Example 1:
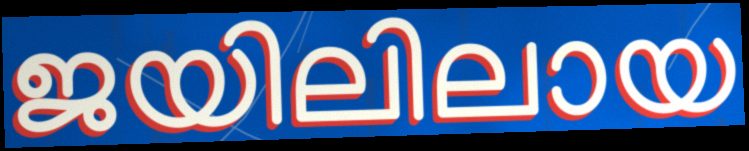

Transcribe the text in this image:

ജയിലിലായ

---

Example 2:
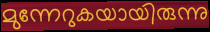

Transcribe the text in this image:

മുന്നേറുകയായിരുന്നു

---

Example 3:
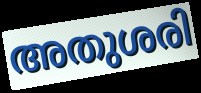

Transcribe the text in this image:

അതുശരി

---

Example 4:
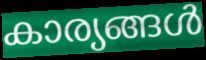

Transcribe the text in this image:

കാര്യങ്ങൾ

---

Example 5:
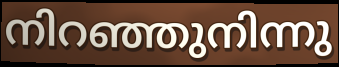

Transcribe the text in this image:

നിറഞ്ഞുനിന്നു